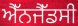
ਐੱਨਜੈੱਡਸੀ